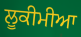
ਲੂਕੀਮੀਆ